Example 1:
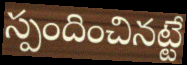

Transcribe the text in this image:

స్పందించినట్టే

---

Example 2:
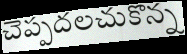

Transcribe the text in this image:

చెప్పదలచుకొన్న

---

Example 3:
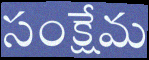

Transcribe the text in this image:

సంక్షేమ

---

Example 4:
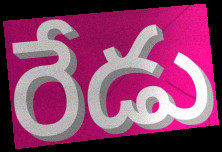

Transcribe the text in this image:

రేడు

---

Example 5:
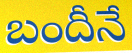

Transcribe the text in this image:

బందీనే